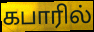
கபாரில்